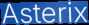
Asterix